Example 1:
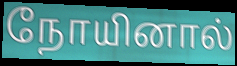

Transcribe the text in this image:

நோயினால்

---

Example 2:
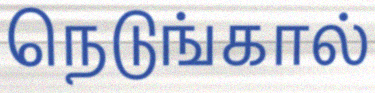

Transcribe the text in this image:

நெடுங்கால்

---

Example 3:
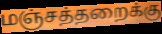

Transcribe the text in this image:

மஞ்சத்தறைக்கு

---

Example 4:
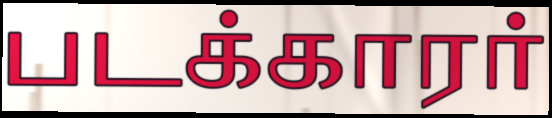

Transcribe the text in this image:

படக்காரர்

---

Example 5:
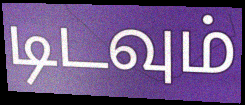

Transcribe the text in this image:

டிடவும்